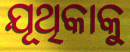
ଯୂଥିକାକୁ